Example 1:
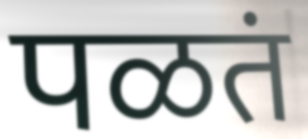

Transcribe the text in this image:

पळतं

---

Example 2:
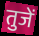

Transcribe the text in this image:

तुजें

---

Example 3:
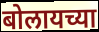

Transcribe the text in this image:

बोलायच्या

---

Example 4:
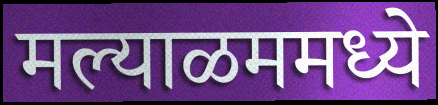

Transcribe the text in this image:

मल्याळममध्ये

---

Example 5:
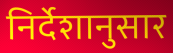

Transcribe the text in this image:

निर्देशानुसार